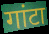
गांटा